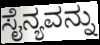
ಸೈನ್ಯವನ್ನು